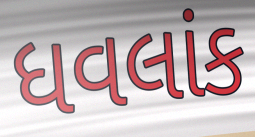
ધવલાંક